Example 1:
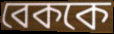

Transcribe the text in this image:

বেককে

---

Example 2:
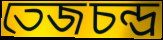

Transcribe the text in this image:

তেজচন্দ্র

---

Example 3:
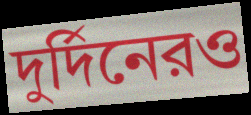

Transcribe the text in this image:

দুর্দিনেরও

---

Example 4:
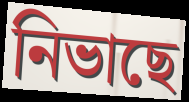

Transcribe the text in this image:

নিভাছে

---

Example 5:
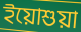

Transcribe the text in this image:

ইয়োশুয়া